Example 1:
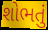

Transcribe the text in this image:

શોભતું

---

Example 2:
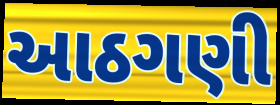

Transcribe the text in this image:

આઠગણી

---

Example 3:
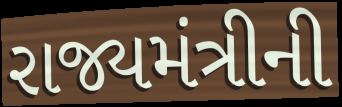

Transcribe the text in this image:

રાજ્યમંત્રીની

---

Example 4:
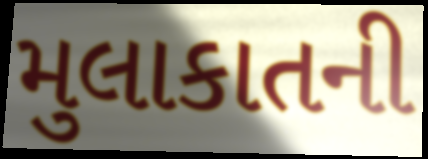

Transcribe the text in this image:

મુલાકાતની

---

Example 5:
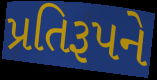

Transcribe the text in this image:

પ્રતિરૂપને